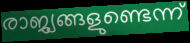
രാജ്യങ്ങളുണ്ടെന്ന്